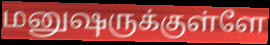
மனுஷருக்குள்ளே